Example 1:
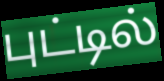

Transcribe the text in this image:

புட்டில்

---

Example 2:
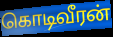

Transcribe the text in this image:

கொடிவீரன்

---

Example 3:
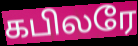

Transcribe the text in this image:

கபிலரே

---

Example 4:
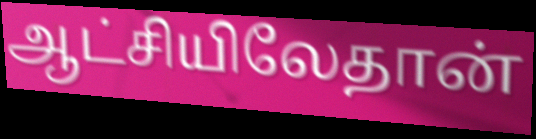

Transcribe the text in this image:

ஆட்சியிலேதான்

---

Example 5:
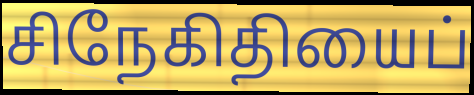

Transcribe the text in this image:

சிநேகிதியைப்